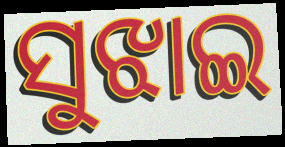
ସୁଝାଇ